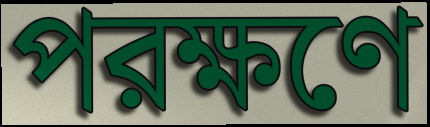
পরক্ষণে